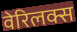
वेरिलक्स